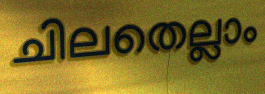
ചിലതെല്ലാം